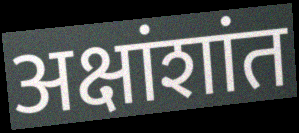
अक्षांशांत